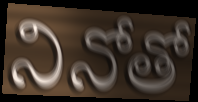
నినోతో